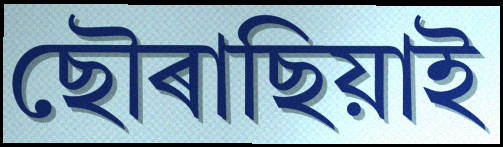
ছৌৰাছিয়াই